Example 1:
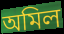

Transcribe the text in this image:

অমিল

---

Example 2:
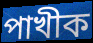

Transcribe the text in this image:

পাখীক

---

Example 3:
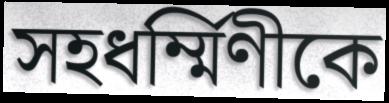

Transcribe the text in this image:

সহধর্ম্মিণীকে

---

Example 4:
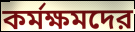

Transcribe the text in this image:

কর্মক্ষমদের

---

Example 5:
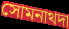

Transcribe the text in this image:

সোমনাথদা